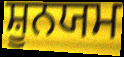
ਸ਼ੂਨਯਮ